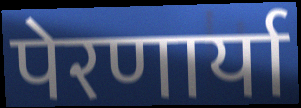
पेरणार्या